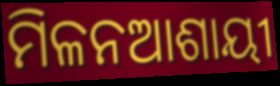
ମିଳନଆଶାୟୀ